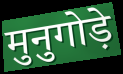
मुनुगोड़े